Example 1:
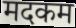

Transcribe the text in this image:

मदकम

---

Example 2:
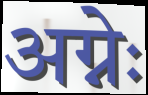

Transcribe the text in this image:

अग्नेः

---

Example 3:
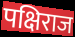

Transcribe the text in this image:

पक्षिराज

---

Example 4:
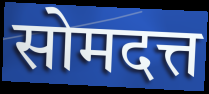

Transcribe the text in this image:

सोमदत्त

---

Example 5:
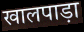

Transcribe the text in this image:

खालपाड़ा